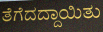
ತೆಗೆದದ್ದಾಯಿತು